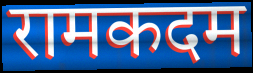
रामकदम